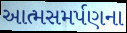
આત્મસમર્પણના